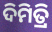
ଦିମିତ୍ରି